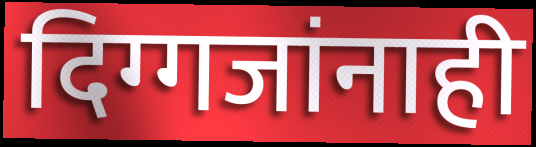
दिग्गजांनाही